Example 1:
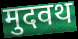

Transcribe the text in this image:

मुदवथ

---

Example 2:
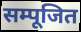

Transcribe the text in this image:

सम्पूजित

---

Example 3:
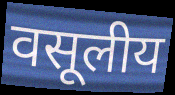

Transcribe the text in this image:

वसूलीय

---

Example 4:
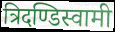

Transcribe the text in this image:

त्रिदण्डिस्वामी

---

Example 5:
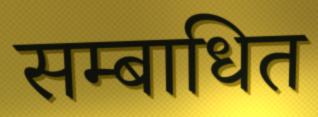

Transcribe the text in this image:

सम्बाधित